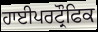
ਹਾਈਪਰਟ੍ਰੌਫਿਕ